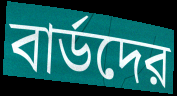
বার্ডদের